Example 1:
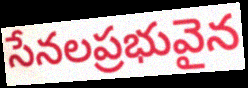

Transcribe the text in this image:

సేనలప్రభువైన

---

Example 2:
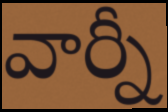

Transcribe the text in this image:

వార్నీ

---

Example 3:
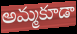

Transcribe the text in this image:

అమ్మకూడా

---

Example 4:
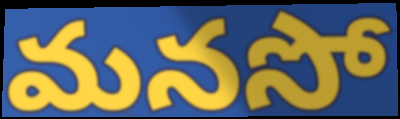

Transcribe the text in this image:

మనసో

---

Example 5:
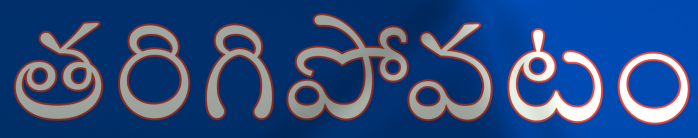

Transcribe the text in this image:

తరిగిపోవటం